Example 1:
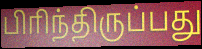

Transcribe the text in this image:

பிரிந்திருப்பது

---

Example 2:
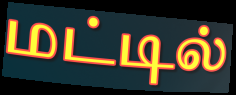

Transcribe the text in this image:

மட்டில்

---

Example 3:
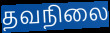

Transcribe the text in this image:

தவநிலை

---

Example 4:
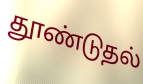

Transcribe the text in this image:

தூண்டுதல்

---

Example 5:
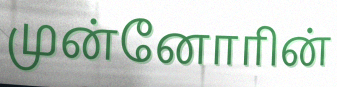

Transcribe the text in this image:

முன்னோரின்